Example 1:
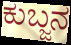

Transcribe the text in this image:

ಕುಬ್ಜನ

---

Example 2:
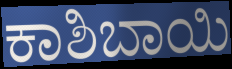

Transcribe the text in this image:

ಕಾಶಿಬಾಯಿ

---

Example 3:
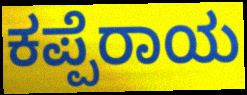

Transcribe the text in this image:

ಕಪ್ಪೆರಾಯ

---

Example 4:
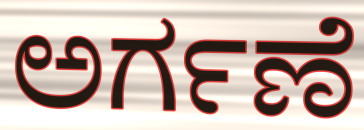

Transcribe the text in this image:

ಅರ್ಗಣೆ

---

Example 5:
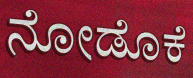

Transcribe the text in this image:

ನೋಡೊಕೆ